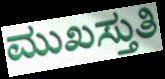
ಮುಖಸ್ತುತಿ